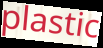
plastic